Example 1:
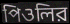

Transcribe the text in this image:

পিওলির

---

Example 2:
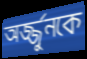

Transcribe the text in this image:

অর্জ্জুনকে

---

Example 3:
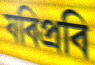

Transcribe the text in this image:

যবিপ্রবি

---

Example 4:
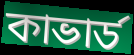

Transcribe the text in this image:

কাভার্ড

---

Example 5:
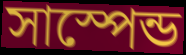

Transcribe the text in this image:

সাস্পেন্ড